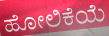
ಹೋಲಿಕೆಯೆ